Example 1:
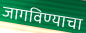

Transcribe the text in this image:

जागविण्याचा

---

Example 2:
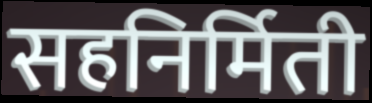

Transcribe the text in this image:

सहनिर्मिती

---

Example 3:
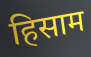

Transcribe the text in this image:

हिसाम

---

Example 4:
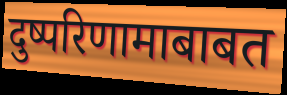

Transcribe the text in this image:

दुष्परिणामाबाबत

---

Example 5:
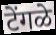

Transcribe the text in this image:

टेंगळे